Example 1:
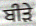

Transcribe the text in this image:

ਬੀੜੇ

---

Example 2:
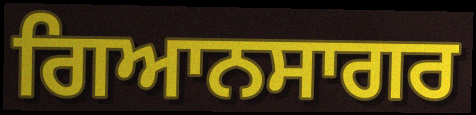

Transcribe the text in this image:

ਗਿਆਨਸਾਗਰ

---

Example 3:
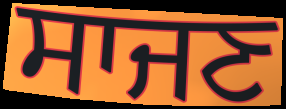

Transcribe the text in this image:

ਸਾਜਣ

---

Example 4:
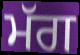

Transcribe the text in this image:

ਮੱਗ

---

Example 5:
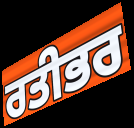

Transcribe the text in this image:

ਰਤੀਭਰ